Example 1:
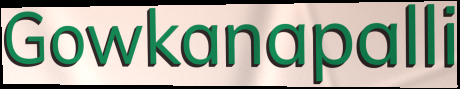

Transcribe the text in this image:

Gowkanapalli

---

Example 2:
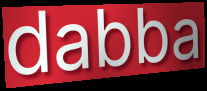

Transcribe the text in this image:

dabba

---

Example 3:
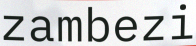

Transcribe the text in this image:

zambezi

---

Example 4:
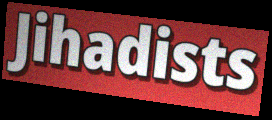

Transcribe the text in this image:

Jihadists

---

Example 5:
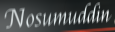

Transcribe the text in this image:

Nosumuddin